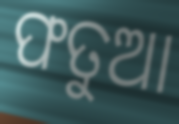
ଫତୁଆ